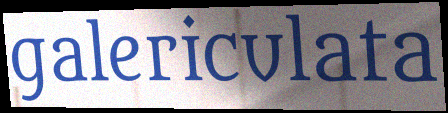
galericulata